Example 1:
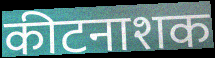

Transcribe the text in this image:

कीटनाशक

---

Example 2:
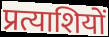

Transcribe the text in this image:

प्रत्याशियों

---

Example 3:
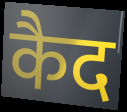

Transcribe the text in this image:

कैद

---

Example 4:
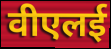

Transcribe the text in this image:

वीएलई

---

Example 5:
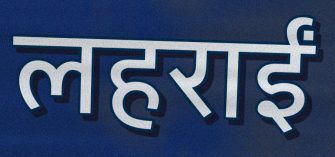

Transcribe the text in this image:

लहराईं